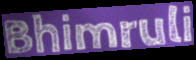
Bhimruli